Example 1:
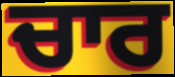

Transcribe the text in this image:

ਚਾਰ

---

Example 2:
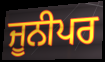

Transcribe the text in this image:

ਜੂਨੀਪਰ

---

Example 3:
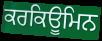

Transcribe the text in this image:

ਕਰਕਿਊਮਿਨ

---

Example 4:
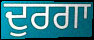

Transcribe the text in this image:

ਦੁਰਗਾ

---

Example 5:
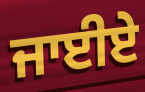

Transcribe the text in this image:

ਜਾਈਏ